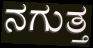
ನಗುತ್ತ